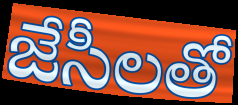
జేసీలతో